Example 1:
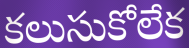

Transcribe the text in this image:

కలుసుకోలేక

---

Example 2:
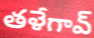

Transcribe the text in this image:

తళేగావ్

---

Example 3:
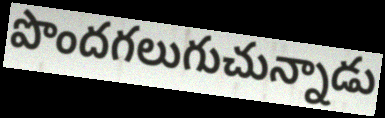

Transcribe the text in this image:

పొందగలుగుచున్నాడు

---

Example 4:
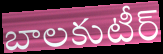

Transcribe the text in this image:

బాలకుటీర్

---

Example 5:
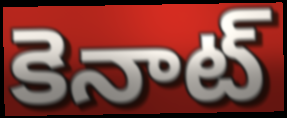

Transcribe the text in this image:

కెనాట్